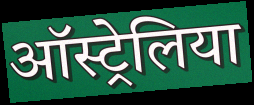
ऑस्ट्रेलिया